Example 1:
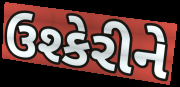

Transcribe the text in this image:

ઉશ્કેરીને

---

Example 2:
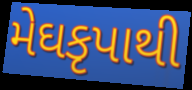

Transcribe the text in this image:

મેઘકૃપાથી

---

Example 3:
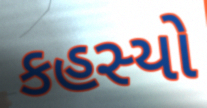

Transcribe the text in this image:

કહસ્યો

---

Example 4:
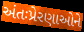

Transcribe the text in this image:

અંતઃપ્રેરણાઓને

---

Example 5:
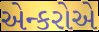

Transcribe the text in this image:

એન્કરોએ